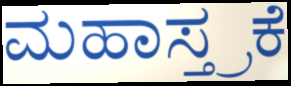
ಮಹಾಸ್ತ್ರಕೆ